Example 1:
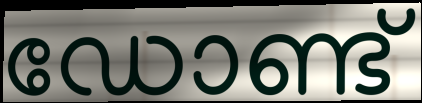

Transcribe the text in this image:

ഡോണ്ട്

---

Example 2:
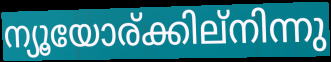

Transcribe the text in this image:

ന്യൂയോര്ക്കില്നിന്നു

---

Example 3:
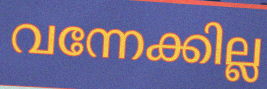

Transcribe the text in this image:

വന്നേക്കില്ല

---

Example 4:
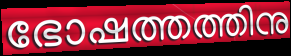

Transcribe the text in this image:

ഭോഷത്തത്തിനു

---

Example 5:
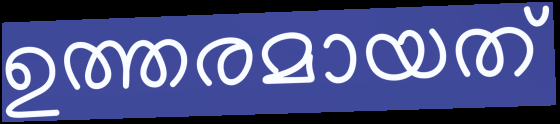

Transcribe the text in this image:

ഉത്തരമായത്